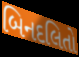
બિનદલિતો